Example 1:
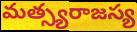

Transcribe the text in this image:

మత్స్యరాజస్య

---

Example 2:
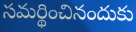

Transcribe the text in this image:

సమర్థించినందుకు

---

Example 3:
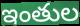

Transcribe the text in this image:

ఇంతుల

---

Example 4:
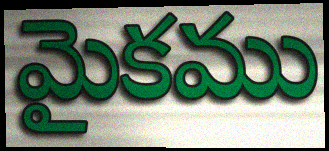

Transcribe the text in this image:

మైకము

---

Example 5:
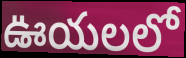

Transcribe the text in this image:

ఊయలలో